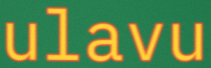
ulavu